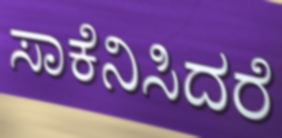
ಸಾಕೆನಿಸಿದರೆ